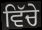
ਵਿੱਚੇ